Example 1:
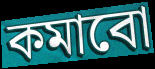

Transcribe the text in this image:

কমাবো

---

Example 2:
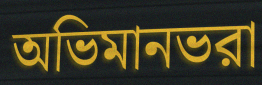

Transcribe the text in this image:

অভিমানভরা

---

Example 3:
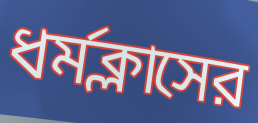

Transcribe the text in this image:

ধর্মক্লাসের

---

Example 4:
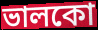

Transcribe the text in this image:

ভালকো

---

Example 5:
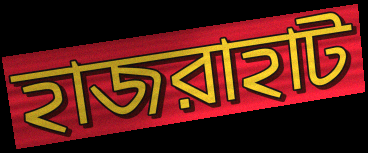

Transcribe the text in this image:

হাজরাহাট